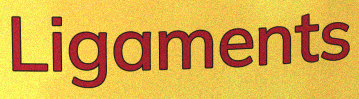
Ligaments